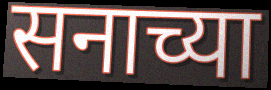
सनाच्या